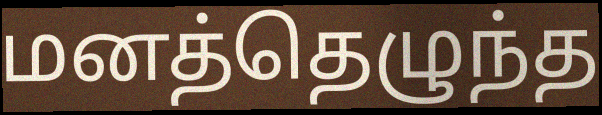
மனத்தெழுந்த